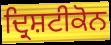
ਦ੍ਰਿਸ਼ਟੀਕੋਨ